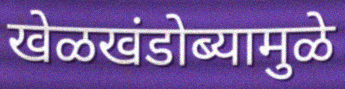
खेळखंडोब्यामुळे